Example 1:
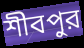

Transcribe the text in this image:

শীবপুর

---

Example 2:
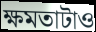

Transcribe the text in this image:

ক্ষমতাটাও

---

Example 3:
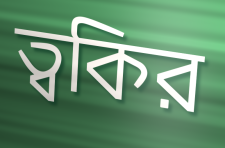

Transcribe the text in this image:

ত্বকির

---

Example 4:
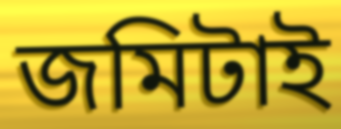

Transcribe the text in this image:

জমিটাই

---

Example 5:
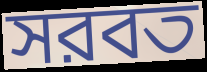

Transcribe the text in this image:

সরবত